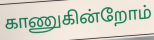
காணுகின்றோம்